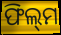
ଫିଲ୍‌ମ